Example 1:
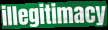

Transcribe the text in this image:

illegitimacy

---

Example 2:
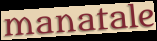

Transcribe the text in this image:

manatale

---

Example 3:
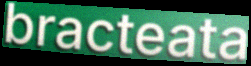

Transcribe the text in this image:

bracteata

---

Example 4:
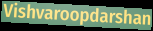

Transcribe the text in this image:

Vishvaroopdarshan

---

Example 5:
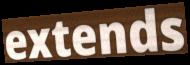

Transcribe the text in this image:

extends